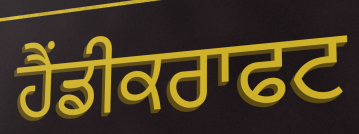
ਹੈਂਡੀਕਰਾਫਟ